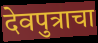
देवपुत्राचा